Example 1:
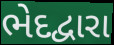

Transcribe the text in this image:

ભેદદ્વારા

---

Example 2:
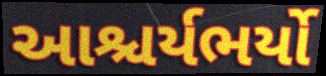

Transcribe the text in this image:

આશ્ચર્યભર્યો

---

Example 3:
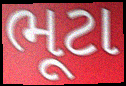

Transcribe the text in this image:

ભૂટા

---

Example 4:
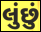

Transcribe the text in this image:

લુંછું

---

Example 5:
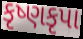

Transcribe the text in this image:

કૃષ્ણકૃપા